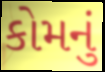
કોમનું